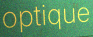
optique